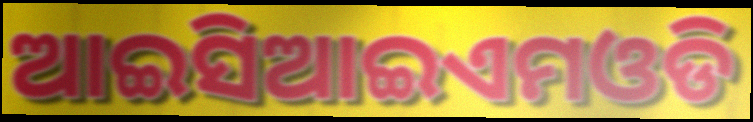
ଆଇସିଆଇଏମଓଡି